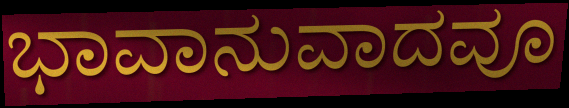
ಭಾವಾನುವಾದವೂ